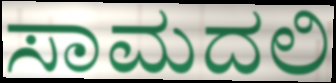
ಸಾಮದಲಿ